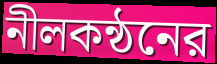
নীলকন্ঠনের